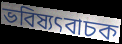
ভবিষ্যৎবাচক